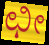
ಛೀ